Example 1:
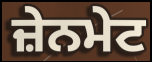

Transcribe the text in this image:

ਜ਼ੇਨਮੇਟ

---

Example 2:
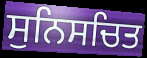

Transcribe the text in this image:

ਸੁਨਿਸਚਿਤ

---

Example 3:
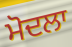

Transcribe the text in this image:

ਮੋਦਲਾ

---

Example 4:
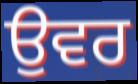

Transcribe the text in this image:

ਉਵਰ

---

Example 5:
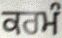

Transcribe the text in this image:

ਕਰਮੰ